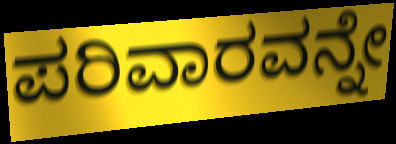
ಪರಿವಾರವನ್ನೇ